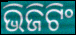
ଭିଜିଟିଂ